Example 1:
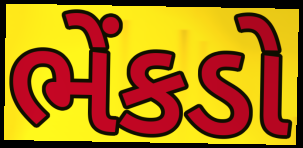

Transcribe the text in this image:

ભેંકડો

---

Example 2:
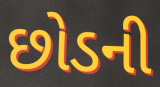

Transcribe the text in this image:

છોડની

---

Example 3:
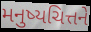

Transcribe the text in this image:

મનુષ્યચિત્તને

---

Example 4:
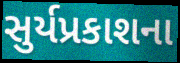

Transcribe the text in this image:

સુર્યપ્રકાશના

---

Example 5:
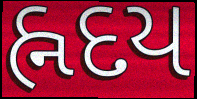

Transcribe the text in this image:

હ્નદય